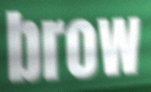
brow